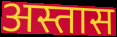
अस्तास